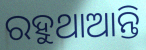
ରହୁଥାଆନ୍ତି